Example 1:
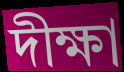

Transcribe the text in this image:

দীক্ষা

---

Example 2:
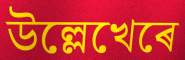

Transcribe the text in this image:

উল্লেখেৰে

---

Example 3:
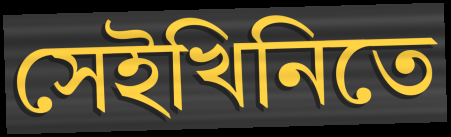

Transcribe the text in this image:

সেইখিনিতে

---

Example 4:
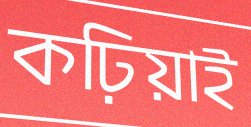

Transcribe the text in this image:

কঢ়িয়াই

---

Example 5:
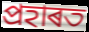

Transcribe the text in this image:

প্ৰহাৰত